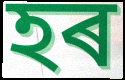
হৰ